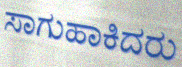
ಸಾಗುಹಾಕಿದರು